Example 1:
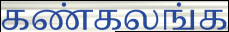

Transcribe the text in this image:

கண்கலங்க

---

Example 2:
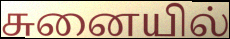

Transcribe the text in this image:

சுனையில்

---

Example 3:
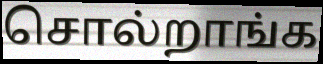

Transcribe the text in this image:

சொல்றாங்க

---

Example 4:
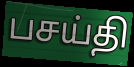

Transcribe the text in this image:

பசய்தி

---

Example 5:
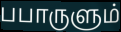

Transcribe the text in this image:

பபாருளும்